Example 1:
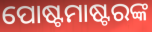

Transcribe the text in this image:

ପୋଷ୍ଟମାଷ୍ଟରଙ୍କ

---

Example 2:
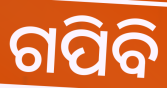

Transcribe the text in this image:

ଗପିବି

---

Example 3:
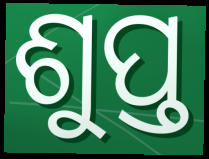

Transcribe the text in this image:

ଶୁପ୍ତ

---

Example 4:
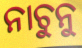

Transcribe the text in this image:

ନାଚୁନୁ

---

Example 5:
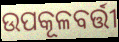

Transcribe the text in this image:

ଉପକୂଳବର୍ତ୍ତୀ